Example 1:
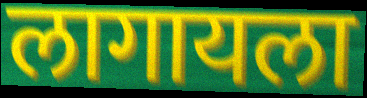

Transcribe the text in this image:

लागायला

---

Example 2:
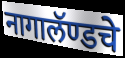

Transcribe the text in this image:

नागालॅण्डचे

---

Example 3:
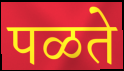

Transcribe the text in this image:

पळते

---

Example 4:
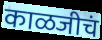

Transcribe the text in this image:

काळजीचं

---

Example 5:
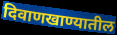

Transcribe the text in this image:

दिवाणखाण्यातील